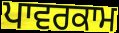
ਪਾਵਰਕਾਮ